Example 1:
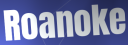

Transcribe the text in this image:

Roanoke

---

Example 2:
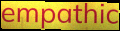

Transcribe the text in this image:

empathic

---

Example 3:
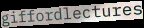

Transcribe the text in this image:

giffordlectures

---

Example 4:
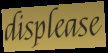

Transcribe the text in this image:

displease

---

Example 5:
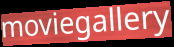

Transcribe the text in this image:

moviegallery